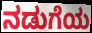
ನಡುಗೆಯ